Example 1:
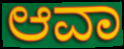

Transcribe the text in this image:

ಆವಾ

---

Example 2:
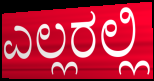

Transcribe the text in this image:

ಎಲ್ಲರಲ್ಲಿ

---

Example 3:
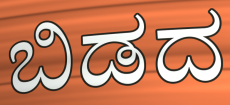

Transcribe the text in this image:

ಬಿಡದ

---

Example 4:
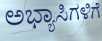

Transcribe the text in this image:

ಅಭ್ಯಾಸಿಗಳಿಗೆ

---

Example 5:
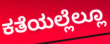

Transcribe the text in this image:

ಕತೆಯಲ್ಲೆಲ್ಲೂ